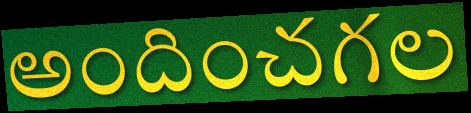
అందించగల